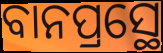
ବାନପ୍ରସ୍ଥେ